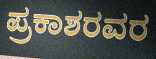
ಪ್ರಕಾಶರವರ